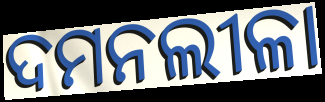
ଦମନଲୀଳା